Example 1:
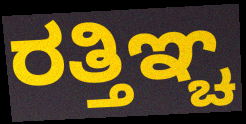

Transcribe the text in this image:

ರತ್ತಿಞ್ಚ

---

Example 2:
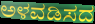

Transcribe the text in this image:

ಅಳವಡಿಸದ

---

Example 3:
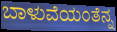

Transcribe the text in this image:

ಬಾಳುವೆಯಂತೆನ್ನ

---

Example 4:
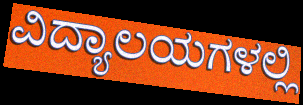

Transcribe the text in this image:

ವಿದ್ಯಾಲಯಗಳಲ್ಲಿ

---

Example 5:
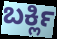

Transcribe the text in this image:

ಬರ್ಕ್ಲಿ